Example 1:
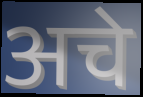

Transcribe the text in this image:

अचे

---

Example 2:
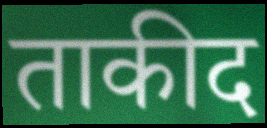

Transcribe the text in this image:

ताकीद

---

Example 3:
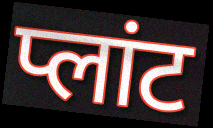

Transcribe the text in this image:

प्‍लांट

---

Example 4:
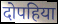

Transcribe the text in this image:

दोपहिया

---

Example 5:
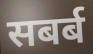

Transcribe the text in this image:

सबर्ब